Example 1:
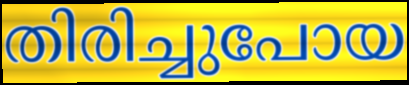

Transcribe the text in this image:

തിരിച്ചുപോയ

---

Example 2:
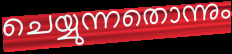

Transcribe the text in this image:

ചെയ്യുന്നതൊന്നും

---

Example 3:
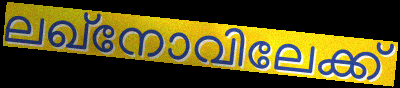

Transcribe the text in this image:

ലഖ്നോവിലേക്ക്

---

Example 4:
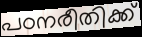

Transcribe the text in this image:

പഠനരീതിക്ക്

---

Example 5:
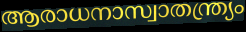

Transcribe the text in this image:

ആരാധനാസ്വാതന്ത്ര്യം